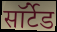
सॉर्टेड